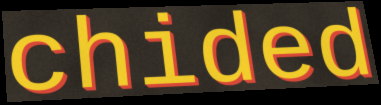
chided